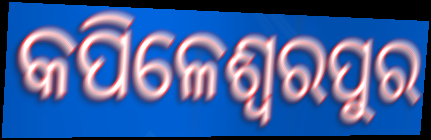
କପିଳେଶ୍ୱରପୁର